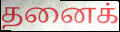
தனைக்